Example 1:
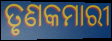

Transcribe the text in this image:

ତୃଣକମାରୀ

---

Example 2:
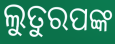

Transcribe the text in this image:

ଲୁତୁରପଙ୍କ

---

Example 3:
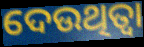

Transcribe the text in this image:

ଦେଉଥିତ୍ବା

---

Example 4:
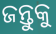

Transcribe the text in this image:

ଜନ୍ତୁକୁ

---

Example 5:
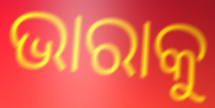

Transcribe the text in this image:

ଭାରାକୁ